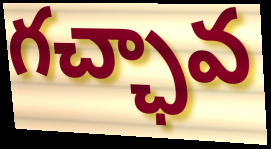
గచ్ఛావ